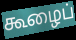
கூழைப்